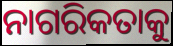
ନାଗରିକତାକୁ